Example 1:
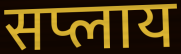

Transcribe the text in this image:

सप्लाय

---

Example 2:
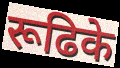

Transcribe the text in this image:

रूढिके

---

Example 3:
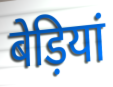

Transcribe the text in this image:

बेड़ियां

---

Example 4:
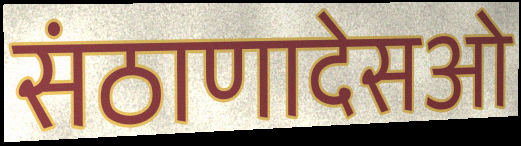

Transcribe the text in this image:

संठाणादेसओ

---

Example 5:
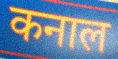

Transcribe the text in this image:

कनाल